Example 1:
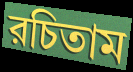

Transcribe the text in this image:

রচিতাম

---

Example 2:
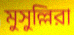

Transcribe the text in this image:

মুসুল্লিরা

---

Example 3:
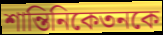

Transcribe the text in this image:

শান্তিনিকেতনকে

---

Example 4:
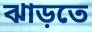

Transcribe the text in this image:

ঝাড়তে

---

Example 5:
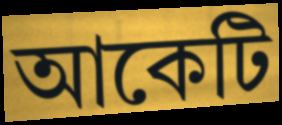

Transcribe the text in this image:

আকেটি